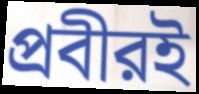
প্রবীরই